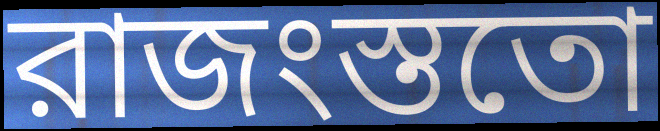
রাজংস্ততো